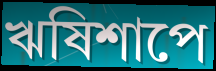
ঋষিশাপে